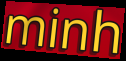
minh